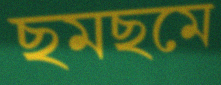
ছমছমে